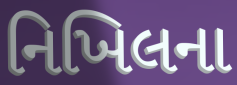
નિખિલના